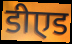
डीएड